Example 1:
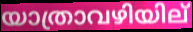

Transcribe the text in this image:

യാത്രാവഴിയില്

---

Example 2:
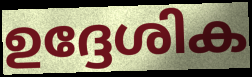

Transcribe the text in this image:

ഉദ്ദേശിക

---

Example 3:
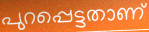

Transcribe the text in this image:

പുറപ്പെട്ടതാണ്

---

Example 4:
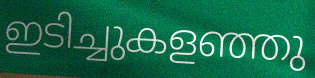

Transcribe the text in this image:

ഇടിച്ചുകളഞ്ഞു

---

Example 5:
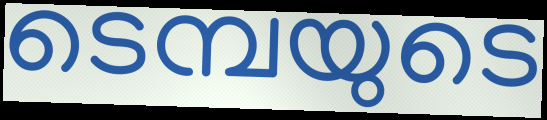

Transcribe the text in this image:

ടെമ്പയുടെ